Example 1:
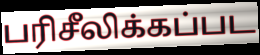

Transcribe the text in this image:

பரிசீலிக்கப்பட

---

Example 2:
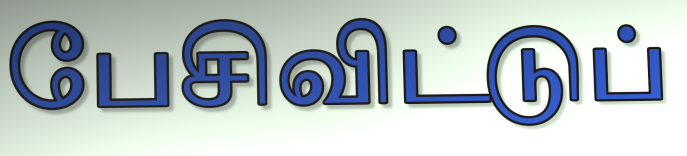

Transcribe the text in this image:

பேசிவிட்டுப்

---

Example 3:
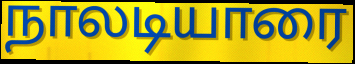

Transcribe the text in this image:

நாலடியாரை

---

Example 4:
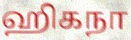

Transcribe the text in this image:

ஹிகநா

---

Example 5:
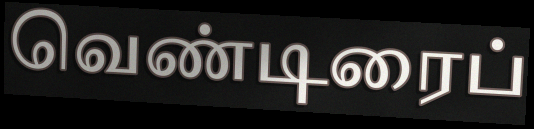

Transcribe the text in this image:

வெண்டிரைப்